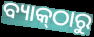
ବ୍ୟାକ୍‌ଠାରୁ